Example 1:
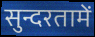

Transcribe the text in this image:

सुन्दरतामें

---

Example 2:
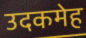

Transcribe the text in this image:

उदकमेह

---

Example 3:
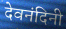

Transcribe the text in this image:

देवनंदिनी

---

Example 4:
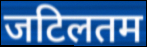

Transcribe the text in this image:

जटिलतम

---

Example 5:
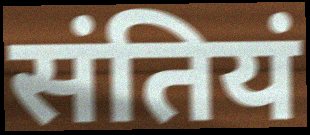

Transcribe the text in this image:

संतियं